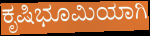
ಕೃಷಿಭೂಮಿಯಾಗಿ